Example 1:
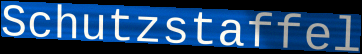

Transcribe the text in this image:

Schutzstaffel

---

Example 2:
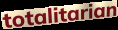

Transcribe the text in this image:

totalitarian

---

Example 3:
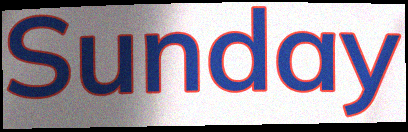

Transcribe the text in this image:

Sunday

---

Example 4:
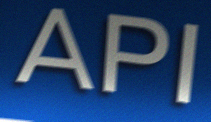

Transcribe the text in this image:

API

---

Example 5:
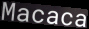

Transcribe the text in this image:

Macaca